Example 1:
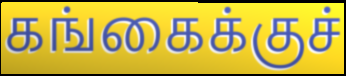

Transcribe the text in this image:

கங்கைக்குச்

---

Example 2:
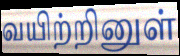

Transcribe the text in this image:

வயிற்றினுள்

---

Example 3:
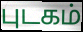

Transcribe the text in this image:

புடகம்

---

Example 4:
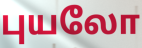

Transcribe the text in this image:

புயலோ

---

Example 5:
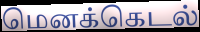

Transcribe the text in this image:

மெனக்கெடல்